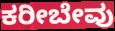
ಕರೀಬೇವು